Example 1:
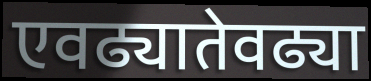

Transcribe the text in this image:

एवढ्यातेवढ्या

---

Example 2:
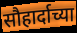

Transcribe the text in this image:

सौहार्दाच्या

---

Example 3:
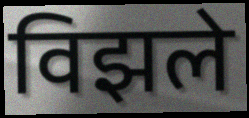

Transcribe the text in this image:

विझले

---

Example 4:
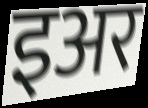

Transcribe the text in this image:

इअर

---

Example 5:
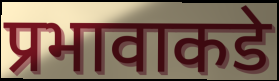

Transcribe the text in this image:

प्रभावाकडे